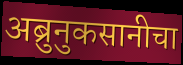
अब्रुनुकसानीचा